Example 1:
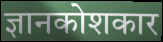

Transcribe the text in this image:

ज्ञानकोशकार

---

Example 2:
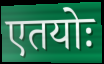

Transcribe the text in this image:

एतयोः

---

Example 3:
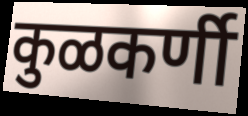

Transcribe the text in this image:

कुळकर्णी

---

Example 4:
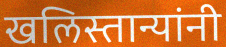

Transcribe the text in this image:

खलिस्तान्यांनी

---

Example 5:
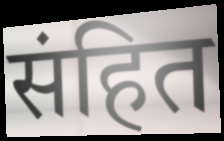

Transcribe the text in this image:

संहित